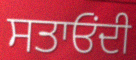
ਸਤਾਓਂਦੀ